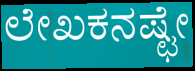
ಲೇಖಕನಷ್ಟೇ